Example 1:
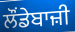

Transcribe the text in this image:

ਲੌਂਡੇਬਾਜ਼ੀ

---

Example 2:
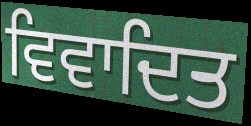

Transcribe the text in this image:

ਵਿਵਾਦਿਤ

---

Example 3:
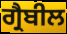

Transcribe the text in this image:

ਗ੍ਰੈਬੀਲ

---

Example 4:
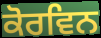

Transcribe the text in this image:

ਕੋਰਵਿਨ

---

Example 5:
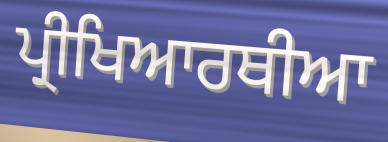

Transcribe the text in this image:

ਪ੍ਰੀਖਿਆਰਥੀਆ